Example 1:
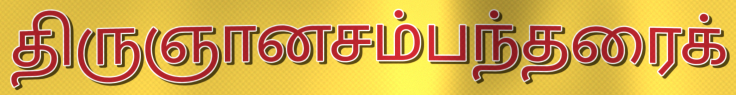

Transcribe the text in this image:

திருஞானசம்பந்தரைக்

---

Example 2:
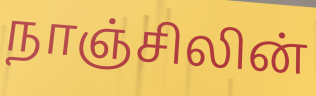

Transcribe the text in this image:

நாஞ்சிலின்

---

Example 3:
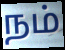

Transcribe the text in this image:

நம்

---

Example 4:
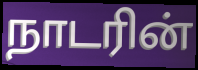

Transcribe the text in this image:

நாடரின்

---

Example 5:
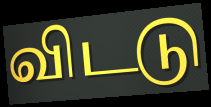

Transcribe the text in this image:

விடடு